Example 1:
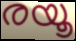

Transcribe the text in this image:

രയൂ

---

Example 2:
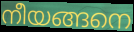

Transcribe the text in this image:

നീയങ്ങനെ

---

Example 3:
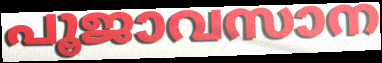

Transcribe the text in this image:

പൂജാവസാന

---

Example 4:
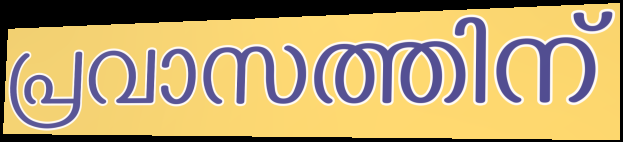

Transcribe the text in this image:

പ്രവാസത്തിന്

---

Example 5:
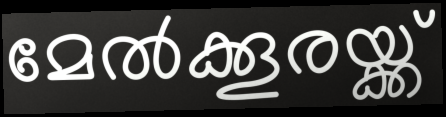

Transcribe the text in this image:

മേൽക്കൂരയ്ക്ക്